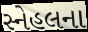
સ્નેહલના